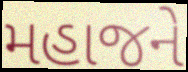
મહાજને